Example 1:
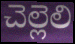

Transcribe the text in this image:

చెల్లెలి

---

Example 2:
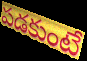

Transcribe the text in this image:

పడకుంటే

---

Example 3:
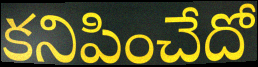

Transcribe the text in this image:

కనిపించేదో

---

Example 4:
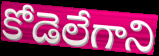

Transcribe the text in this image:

కోడెలేగాని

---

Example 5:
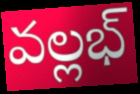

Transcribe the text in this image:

వల్లభ్